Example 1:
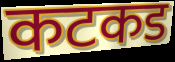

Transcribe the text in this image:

कटकड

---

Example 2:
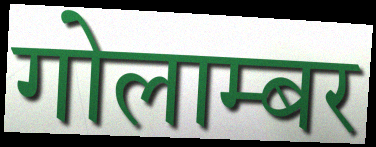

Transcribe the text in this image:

गोलाम्बर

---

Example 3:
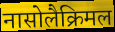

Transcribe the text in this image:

नासोलैक्रिमल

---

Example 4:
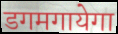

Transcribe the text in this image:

डगमगायेगा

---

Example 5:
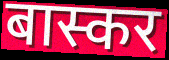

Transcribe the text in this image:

बास्कर